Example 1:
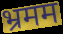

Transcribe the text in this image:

भ्रमम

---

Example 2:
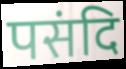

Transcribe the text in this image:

पसंदि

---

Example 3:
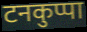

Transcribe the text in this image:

टनकुप्पा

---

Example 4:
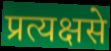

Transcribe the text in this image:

प्रत्यक्षसे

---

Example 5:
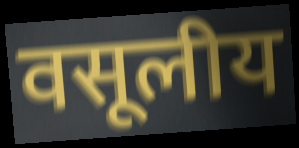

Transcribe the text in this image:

वसूलीय